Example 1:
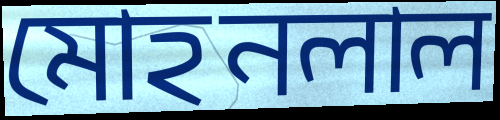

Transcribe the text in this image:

মোহনলাল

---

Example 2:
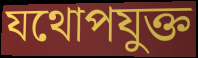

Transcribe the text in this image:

যথোপযুক্ত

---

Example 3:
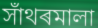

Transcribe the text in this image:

সাঁথৰমালা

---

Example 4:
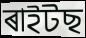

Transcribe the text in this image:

ৰাইটছ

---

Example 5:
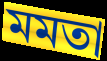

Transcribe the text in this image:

মমতা